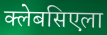
क्लेबसिएला